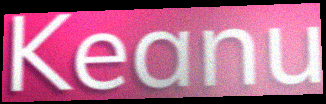
Keanu